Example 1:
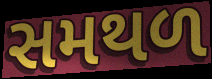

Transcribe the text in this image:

સમથળ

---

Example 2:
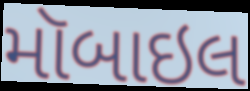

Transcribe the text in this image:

મૉબાઇલ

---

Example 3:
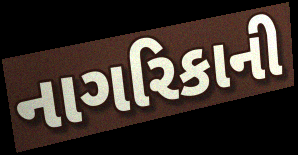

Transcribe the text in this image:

નાગરિકાની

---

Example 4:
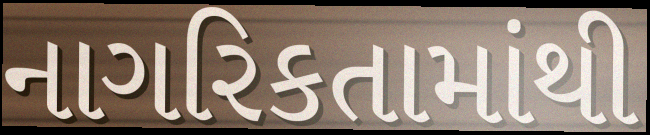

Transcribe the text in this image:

નાગરિકતામાંથી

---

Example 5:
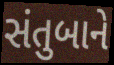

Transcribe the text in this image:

સંતુબાને